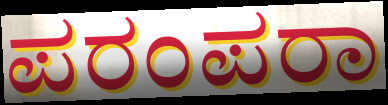
ಪರಂಪರಾ